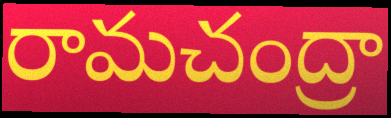
రామచంద్రా